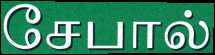
சேபால்